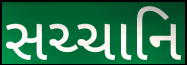
સચ્ચાનિ